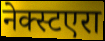
नेक्स्टएरा